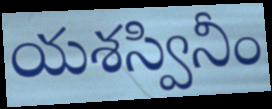
యశస్వినీం